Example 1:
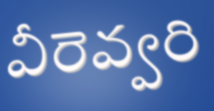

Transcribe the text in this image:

వీరెవ్వరి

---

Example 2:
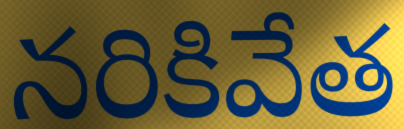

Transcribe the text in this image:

నరికివేత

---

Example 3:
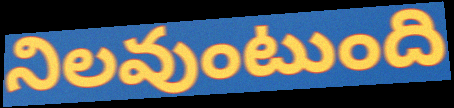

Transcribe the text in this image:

నిలవుంటుంది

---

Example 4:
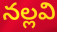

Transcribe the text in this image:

నల్లవి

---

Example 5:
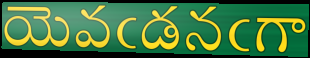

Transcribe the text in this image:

యెవఁడనఁగా